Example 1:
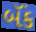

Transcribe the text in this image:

બૅંક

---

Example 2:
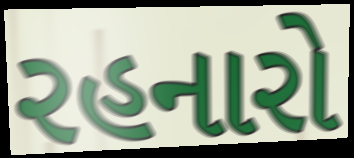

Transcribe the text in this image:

રહનારો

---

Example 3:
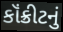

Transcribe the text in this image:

કૉંક્રીટનું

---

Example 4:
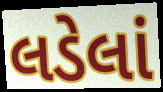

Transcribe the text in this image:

લડેલાં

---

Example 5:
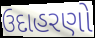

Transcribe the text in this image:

ઉદાહરણો